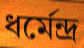
ধৰ্মেন্দ্ৰ